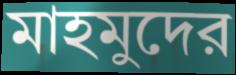
মাহমুদের